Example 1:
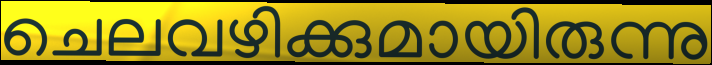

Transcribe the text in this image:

ചെലവഴിക്കുമായിരുന്നു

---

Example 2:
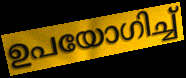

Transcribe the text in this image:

ഉപയോഗിച്ച്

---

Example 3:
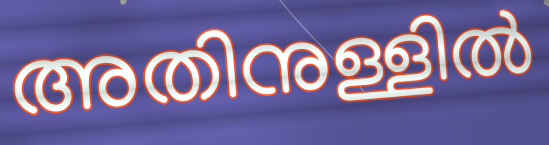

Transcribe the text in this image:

അതിനുള്ളിൽ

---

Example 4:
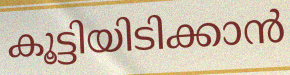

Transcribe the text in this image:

കൂട്ടിയിടിക്കാൻ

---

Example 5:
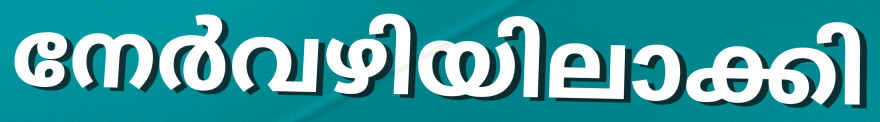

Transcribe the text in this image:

നേർവഴിയിലാക്കി